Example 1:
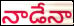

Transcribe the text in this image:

నాడేనా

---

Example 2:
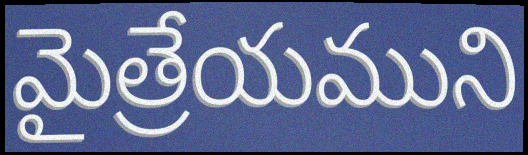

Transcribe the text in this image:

మైత్రేయముని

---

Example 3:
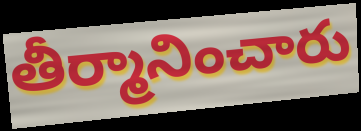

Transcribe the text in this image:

తీర్మానించారు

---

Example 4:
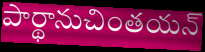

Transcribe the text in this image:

పార్థానుచింతయన్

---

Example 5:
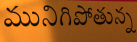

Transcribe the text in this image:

మునిగిపోతున్న